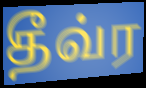
தீவ்ர